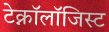
टेक्नॉलॉजिस्ट